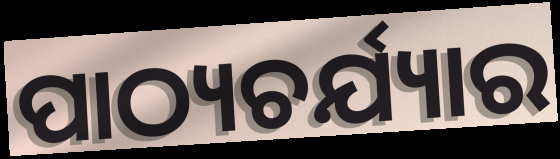
ପାଠ୍ୟଚର୍ଯ୍ୟାର